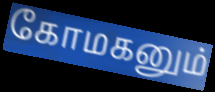
கோமகனும்